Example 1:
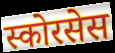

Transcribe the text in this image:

स्कोरसेस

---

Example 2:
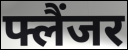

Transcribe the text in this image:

फ्लैंजर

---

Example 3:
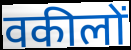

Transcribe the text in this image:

वकीलों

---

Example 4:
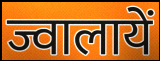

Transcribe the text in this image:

ज्वालायें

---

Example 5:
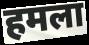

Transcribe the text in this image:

हमला